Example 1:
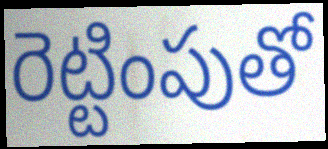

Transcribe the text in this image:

రెట్టింపుతో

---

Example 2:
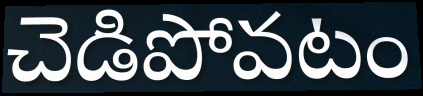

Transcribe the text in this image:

చెడిపోవటం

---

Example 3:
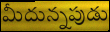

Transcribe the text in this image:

మీదున్నపుడు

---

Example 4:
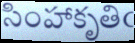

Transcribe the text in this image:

సింహాకృతిఁ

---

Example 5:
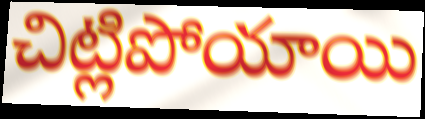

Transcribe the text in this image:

చిట్లిపోయాయి